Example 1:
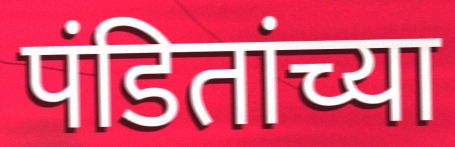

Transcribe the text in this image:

पंडितांच्या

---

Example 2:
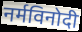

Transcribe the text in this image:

नर्मविनोदी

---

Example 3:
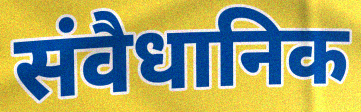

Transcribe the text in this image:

संवैधानिक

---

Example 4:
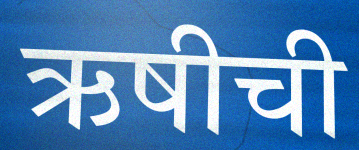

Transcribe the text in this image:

ऋषीची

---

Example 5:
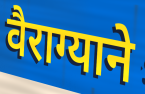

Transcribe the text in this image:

वैराग्याने